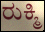
ರುಕ್ಮಿ